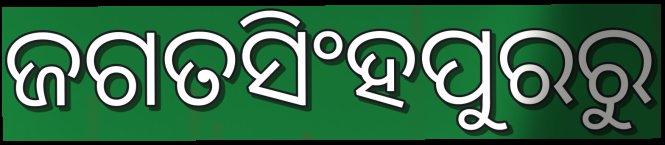
ଜଗତସିଂହପୁରରୁ